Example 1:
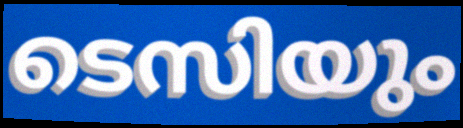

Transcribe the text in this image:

ടെസിയും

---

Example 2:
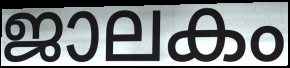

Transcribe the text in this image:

ജാലകം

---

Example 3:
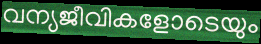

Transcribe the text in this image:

വന്യജീവികളോടെയും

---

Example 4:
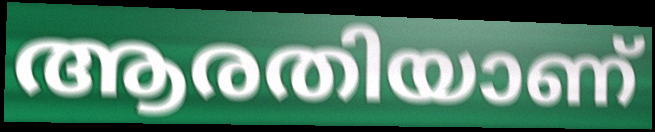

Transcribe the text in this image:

ആരതിയാണ്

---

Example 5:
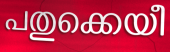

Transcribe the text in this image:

പതുക്കെയീ